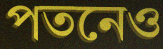
পতনেও